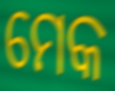
ମେକ